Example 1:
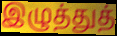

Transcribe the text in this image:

இழுத்துத்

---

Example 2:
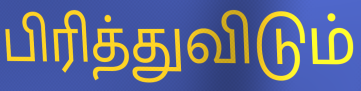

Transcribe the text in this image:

பிரித்துவிடும்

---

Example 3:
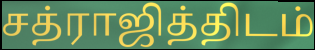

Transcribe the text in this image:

சத்ராஜித்திடம்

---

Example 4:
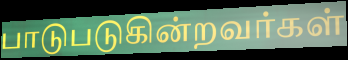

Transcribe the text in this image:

பாடுபடுகின்றவர்கள்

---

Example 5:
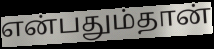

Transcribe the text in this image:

என்பதும்தான்